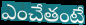
ఎంచేతంటే